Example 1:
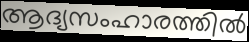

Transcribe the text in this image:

ആദ്യസംഹാരത്തിൽ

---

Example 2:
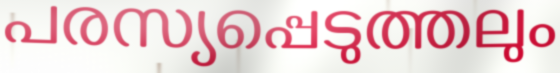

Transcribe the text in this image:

പരസ്യപ്പെടുത്തലും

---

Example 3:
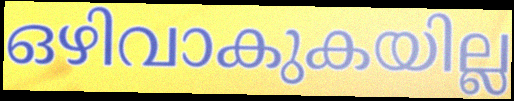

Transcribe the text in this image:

ഒഴിവാകുകയില്ല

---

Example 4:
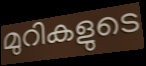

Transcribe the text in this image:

മുറികളുടെ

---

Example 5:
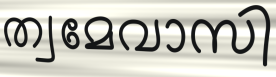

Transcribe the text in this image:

ത്വമേവാസി